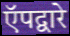
ऍपद्वारे